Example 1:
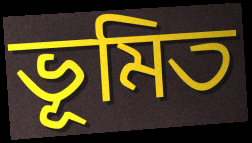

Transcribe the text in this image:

ভূমিত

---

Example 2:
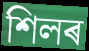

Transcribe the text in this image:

শিলৰ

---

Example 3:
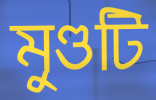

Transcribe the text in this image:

মুণ্ডটি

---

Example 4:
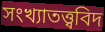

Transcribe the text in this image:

সংখ্যাতত্ত্ববিদ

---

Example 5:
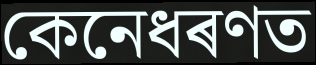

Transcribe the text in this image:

কেনেধৰণত